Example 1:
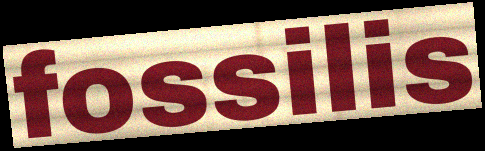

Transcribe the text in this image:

fossilis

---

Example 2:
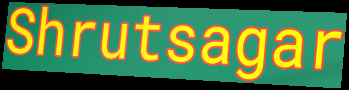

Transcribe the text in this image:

Shrutsagar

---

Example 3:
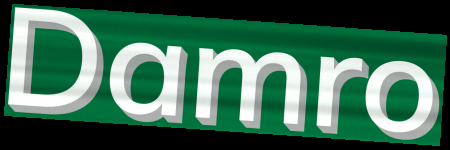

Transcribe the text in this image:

Damro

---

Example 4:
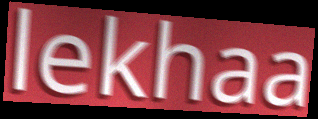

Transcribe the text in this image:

lekhaa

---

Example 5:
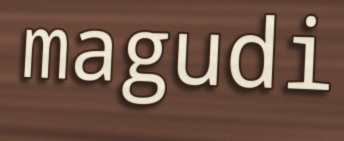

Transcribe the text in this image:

magudi